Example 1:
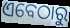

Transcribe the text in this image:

ଏବେଠାରୁ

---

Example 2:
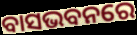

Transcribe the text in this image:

ବାସଭବନରେ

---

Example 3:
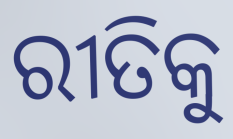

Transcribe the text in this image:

ରୀତିକୁ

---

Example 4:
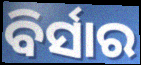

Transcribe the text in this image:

ବିର୍ସାର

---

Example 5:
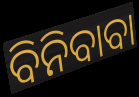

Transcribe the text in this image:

ବିନିବାବା